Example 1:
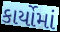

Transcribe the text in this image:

કાર્યોમાં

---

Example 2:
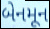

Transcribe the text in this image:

બેનમૂન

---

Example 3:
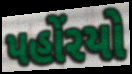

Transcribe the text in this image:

પહોંરયો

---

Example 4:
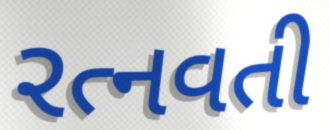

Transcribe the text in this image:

રત્નવતી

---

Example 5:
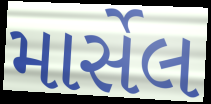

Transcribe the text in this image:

માર્સેલ